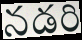
నడరి